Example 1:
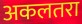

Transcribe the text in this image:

अकलतरा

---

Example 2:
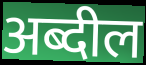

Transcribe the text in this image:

अब्दील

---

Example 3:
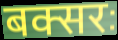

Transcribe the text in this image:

बक्सरः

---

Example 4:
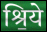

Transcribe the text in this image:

श्रि॒ये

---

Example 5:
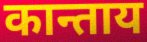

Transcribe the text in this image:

कान्ताय